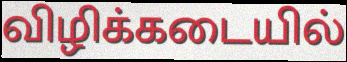
விழிக்கடையில்